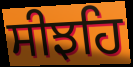
ਸੀਝਹਿ